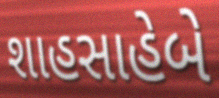
શાહસાહેબે